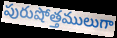
పురుషోత్తములుగా